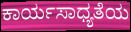
ಕಾರ್ಯಸಾಧ್ಯತೆಯ